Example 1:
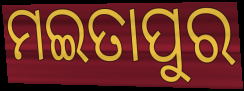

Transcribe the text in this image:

ମଇତାପୁର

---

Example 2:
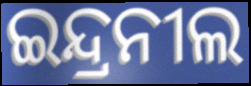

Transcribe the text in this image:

ଇନ୍ଦ୍ରନୀଲ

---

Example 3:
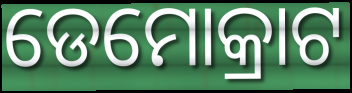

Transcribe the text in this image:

ଡେମୋକ୍ରାଟ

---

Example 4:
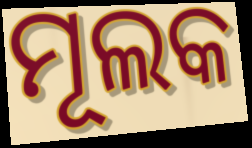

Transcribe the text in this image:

ମୂଲକ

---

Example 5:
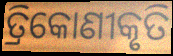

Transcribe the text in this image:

ତ୍ରିକୋଣୀକୃତି